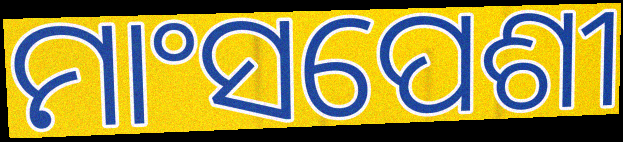
ମାଂସପେଶୀ